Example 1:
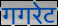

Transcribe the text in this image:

गगरेट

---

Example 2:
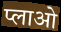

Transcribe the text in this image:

प्लाओ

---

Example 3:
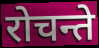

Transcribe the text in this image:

रोचन्ते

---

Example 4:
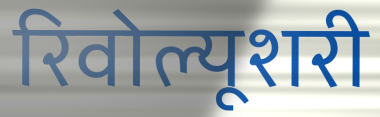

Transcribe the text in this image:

रिवोल्यूशरी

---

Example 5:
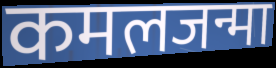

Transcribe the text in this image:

कमलजन्मा